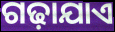
ଗଢ଼ାଯାଏ